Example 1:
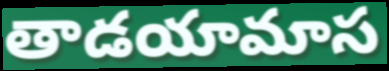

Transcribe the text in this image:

తాడయామాస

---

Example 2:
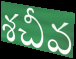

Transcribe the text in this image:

శచీవ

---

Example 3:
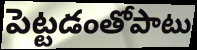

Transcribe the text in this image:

పెట్టడంతోపాటు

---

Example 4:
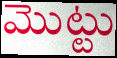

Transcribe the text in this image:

మొట్టు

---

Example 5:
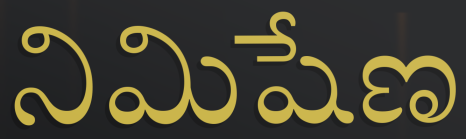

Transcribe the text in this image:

నిమిషేణ